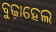
ବୁଢ଼ାହେଲ